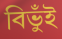
বিভুঁই